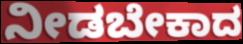
ನೀಡಬೇಕಾದ